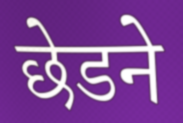
छेडने